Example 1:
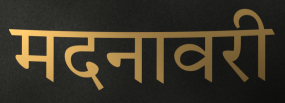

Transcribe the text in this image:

मदनावरी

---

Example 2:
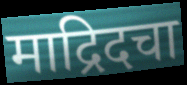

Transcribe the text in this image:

माद्रिदचा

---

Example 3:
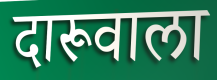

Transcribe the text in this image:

दारूवाला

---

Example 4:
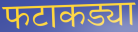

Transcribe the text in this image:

फटाकड्या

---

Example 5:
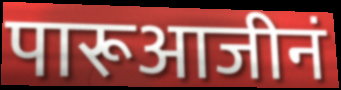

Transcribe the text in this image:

पारूआजीनं